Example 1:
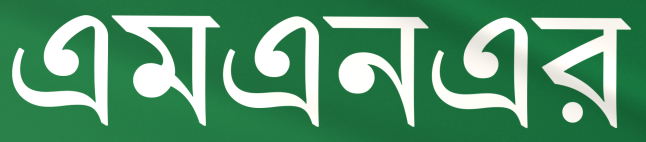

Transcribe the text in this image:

এমএনএর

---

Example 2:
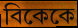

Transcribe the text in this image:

বিকেকে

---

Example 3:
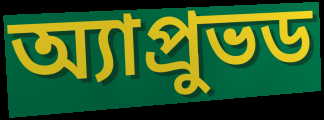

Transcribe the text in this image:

অ্যাপ্রুভড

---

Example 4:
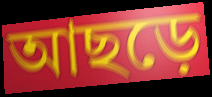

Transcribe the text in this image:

আছড়ে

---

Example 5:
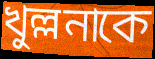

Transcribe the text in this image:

খুল্লনাকে